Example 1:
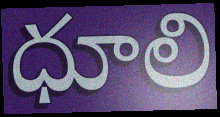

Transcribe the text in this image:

ధూలి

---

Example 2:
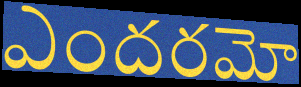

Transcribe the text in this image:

ఎందరమో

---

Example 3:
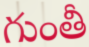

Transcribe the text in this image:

గుంతీ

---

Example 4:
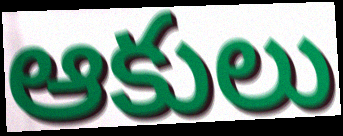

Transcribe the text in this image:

ఆకులు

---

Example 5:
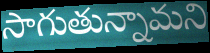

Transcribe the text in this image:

సాగుతున్నామని